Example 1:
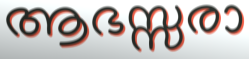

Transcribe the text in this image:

ആഭസ്സരാ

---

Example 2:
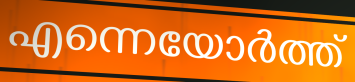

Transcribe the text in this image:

എന്നെയോർത്ത്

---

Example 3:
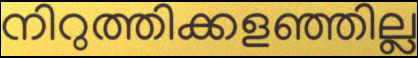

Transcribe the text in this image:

നിറുത്തിക്കളഞ്ഞില്ല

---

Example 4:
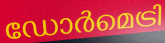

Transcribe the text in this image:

ഡോർമെട്രി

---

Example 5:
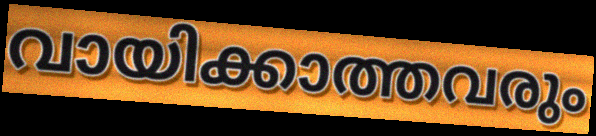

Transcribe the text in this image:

വായിക്കാത്തവരും